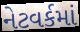
નેટવર્કમાં